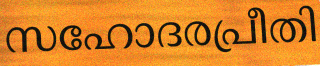
സഹോദരപ്രീതി